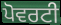
ਪੋਵਰਟੀ